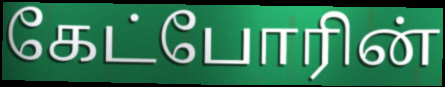
கேட்போரின்